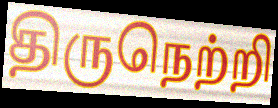
திருநெற்றி